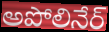
అపోలినేర్